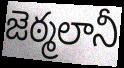
జెఠ్మలానీ